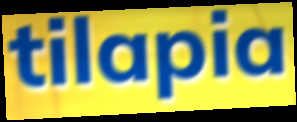
tilapia